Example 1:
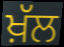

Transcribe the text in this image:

ਖ਼ੱਲ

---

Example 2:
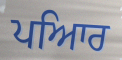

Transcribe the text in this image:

ਪਆਿਰ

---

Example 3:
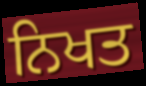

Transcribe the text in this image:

ਨਿਖਤ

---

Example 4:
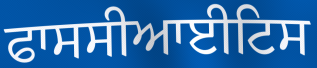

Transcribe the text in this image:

ਫਾਸਸੀਆਈਟਿਸ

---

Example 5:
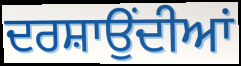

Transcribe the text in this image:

ਦਰਸ਼ਾਉਂਦੀਆਂ